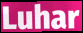
Luhar